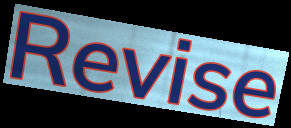
Revise